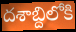
దశాబ్దిలోకి